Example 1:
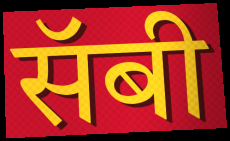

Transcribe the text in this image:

सॅबी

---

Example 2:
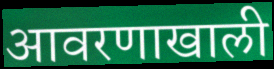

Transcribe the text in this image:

आवरणाखाली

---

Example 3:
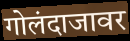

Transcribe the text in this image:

गोलंदाजावर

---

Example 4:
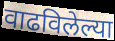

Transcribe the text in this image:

वाढविलेल्या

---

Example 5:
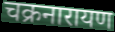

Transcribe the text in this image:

चक्रनारायण